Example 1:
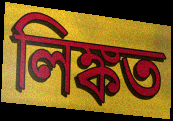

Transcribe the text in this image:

লিঙ্কত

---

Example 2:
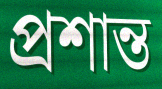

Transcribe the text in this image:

প্ৰশান্ত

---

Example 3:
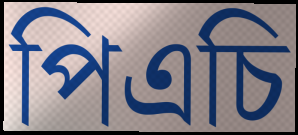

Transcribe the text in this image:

পিএচি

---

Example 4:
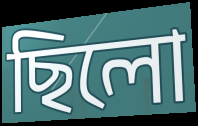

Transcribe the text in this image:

ছিলো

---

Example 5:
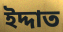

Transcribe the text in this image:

ইদ্দাত